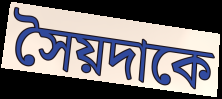
সৈয়দাকে